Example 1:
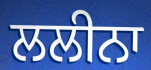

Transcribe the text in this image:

ਲਲੀਨਾ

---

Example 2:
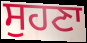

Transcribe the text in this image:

ਸੁਹਣਾ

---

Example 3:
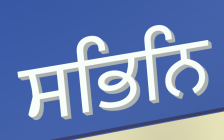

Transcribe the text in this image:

ਸਭਿਨਿ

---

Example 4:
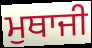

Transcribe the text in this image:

ਮੁਥਾਜੀ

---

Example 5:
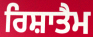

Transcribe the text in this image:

ਰਿਸ਼ਾਤੈਮ